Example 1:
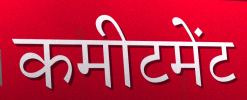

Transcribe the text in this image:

कमीटमेंट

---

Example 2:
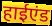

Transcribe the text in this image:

हाईएंड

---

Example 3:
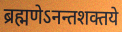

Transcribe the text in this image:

ब्रह्मणेऽनन्तशक्तये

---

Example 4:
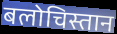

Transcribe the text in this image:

बलोचिस्तान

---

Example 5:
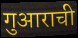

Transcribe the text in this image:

गुआराची